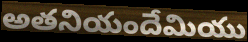
అతనియందేమియు